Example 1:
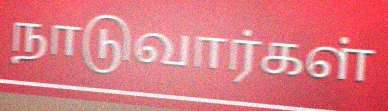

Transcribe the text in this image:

நாடுவார்கள்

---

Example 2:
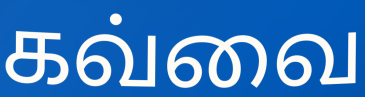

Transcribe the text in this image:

கவ்வை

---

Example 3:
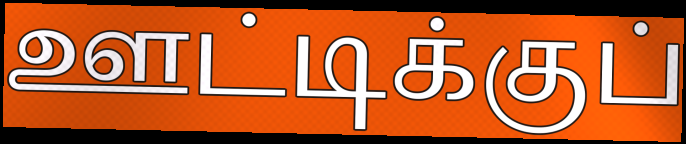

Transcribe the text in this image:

ஊட்டிக்குப்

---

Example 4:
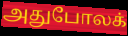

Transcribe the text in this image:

அதுபோலக்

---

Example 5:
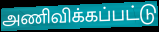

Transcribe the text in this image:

அணிவிக்கப்பட்டு